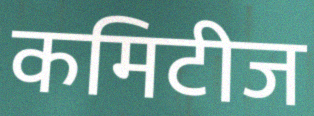
कमिटीज